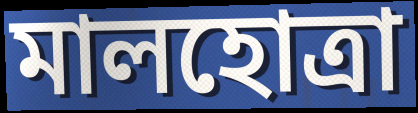
মালহোত্রা